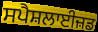
ਸਪੈਸ਼ਲਾਈਜ਼ਡ